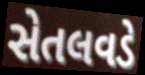
સેતલવડે